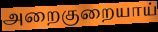
அறைகுறையாய்